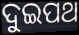
ଦୁଇପଥ